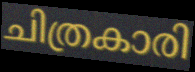
ചിത്രകാരി